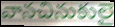
వానచినుకులై